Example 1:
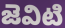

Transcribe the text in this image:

జెవిటి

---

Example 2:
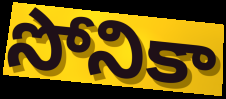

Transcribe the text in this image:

సోనికా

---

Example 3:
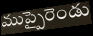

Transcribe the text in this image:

ముప్పైరెండు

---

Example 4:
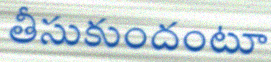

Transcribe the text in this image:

తీసుకుందంటూ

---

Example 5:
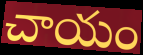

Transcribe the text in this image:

చాయం